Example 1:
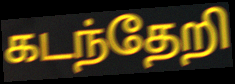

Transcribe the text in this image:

கடந்தேறி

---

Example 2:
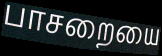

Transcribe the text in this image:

பாசறையை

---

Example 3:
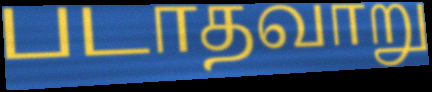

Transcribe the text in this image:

படாதவாறு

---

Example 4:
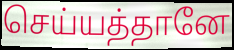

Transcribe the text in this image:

செய்யத்தானே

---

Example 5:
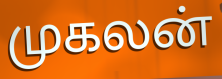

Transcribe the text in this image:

முகலன்